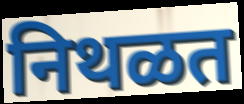
निथळत